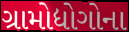
ગ્રામોદ્યોગોના